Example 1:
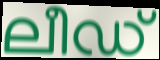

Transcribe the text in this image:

ലീഡ്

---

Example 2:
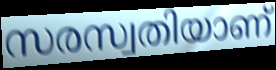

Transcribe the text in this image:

സരസ്വതിയാണ്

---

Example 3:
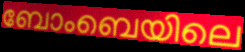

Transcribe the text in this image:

ബോംബെയിലെ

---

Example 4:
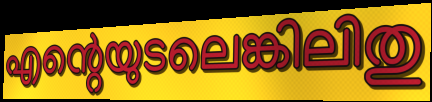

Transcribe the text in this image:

എന്റെയുടലെങ്കിലിതു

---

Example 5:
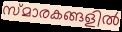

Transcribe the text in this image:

സ്മാരകങ്ങളിൽ